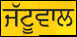
ਜੱਟੂਵਾਲ